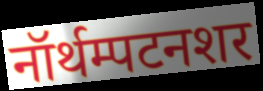
नॉर्थम्पटनशर